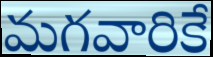
మగవారికే